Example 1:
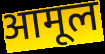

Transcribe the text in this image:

आमूल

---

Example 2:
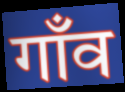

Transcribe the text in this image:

गाँव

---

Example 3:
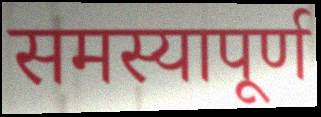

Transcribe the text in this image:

समस्यापूर्ण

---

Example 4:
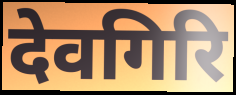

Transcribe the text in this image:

देवगिरि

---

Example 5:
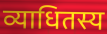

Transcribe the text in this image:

व्याधितस्य